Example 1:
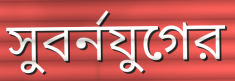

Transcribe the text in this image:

সুবর্নযুগের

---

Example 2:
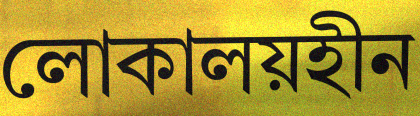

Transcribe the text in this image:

লোকালয়হীন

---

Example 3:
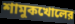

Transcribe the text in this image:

শামুকখোলের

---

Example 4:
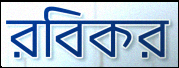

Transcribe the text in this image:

রবিকর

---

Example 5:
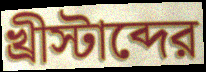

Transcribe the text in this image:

খ্রীস্টাব্দের